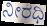
ನೀರಧಿ